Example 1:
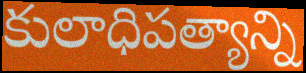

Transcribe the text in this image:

కులాధిపత్యాన్ని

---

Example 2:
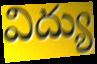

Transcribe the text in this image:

విద్యు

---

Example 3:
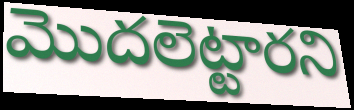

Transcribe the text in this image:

మొదలెట్టారని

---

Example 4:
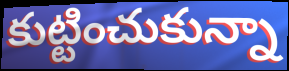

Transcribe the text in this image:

కుట్టించుకున్నా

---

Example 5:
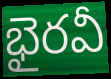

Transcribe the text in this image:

భైరవీ